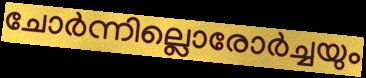
ചോർന്നില്ലൊരോർച്ചയും